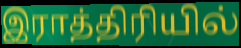
இராத்திரியில்